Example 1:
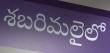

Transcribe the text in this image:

శబరిమలైలో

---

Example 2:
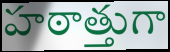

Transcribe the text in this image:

హఠాత్తుగా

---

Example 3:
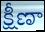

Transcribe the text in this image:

క్షీణా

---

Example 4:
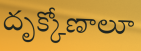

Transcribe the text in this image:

దృక్కోణాలూ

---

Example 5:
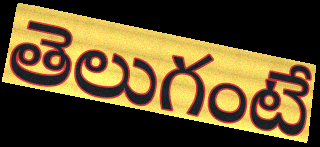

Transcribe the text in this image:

తెలుగంటే